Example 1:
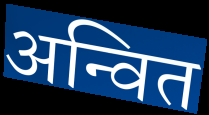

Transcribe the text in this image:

अन्वित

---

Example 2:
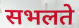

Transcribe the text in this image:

सभलते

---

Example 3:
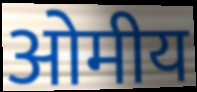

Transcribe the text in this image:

ओमीय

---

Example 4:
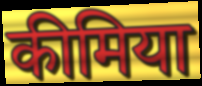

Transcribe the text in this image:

कीमिया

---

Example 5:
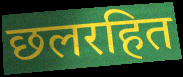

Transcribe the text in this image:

छलरहित